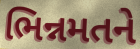
ભિન્નમતને